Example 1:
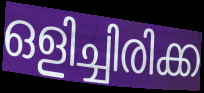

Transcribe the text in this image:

ഒളിച്ചിരിക്ക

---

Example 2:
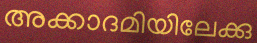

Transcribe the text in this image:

അക്കാദമിയിലേക്കു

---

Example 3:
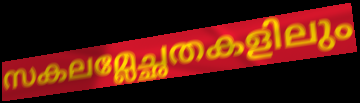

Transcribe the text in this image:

സകലമ്ലേച്ഛതകളിലും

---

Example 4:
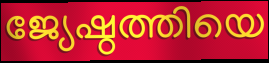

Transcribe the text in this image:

ജ്യേഷ്ഠത്തിയെ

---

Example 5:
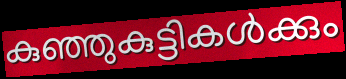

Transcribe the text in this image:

കുഞ്ഞുകുട്ടികൾക്കും